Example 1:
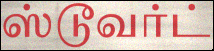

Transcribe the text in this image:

ஸ்டூவர்ட்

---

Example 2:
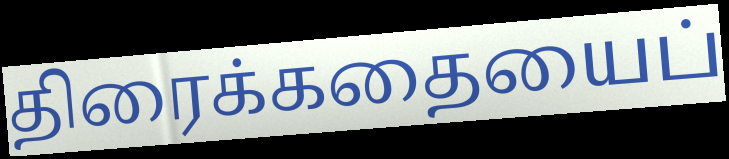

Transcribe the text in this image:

திரைக்கதையைப்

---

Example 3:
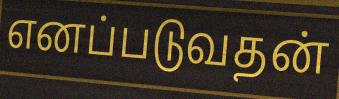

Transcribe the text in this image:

எனப்படுவதன்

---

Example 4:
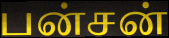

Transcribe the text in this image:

பன்சன்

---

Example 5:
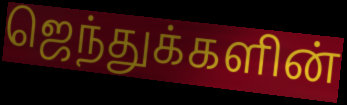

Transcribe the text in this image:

ஜெந்துக்களின்